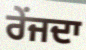
ਰੇਂਜਦਾ